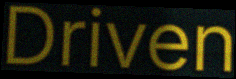
Driven